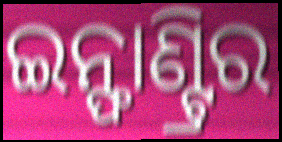
ଇନ୍ଫାଣ୍ଟ୍ରିର